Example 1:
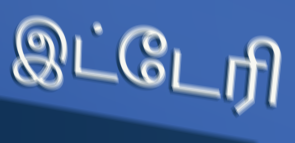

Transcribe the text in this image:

இட்டேரி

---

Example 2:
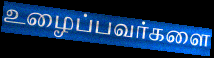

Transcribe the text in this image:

உழைப்பவர்களை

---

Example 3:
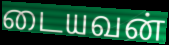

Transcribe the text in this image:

டையவன்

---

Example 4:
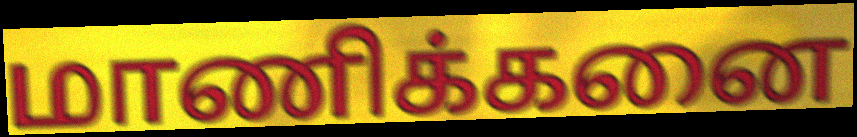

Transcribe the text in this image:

மாணிக்கனை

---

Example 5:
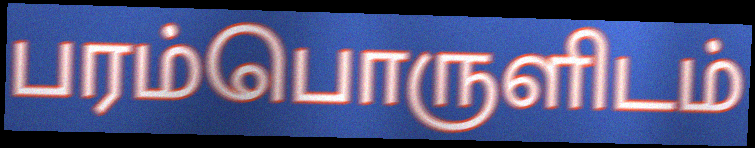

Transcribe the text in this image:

பரம்பொருளிடம்